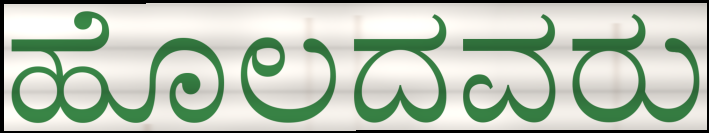
ಹೊಲದವರು